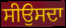
ਸੀਉਸਦਾ